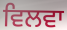
ਵਿਲਵਾ